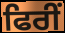
ਫਿਰੀਂ